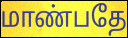
மாண்பதே